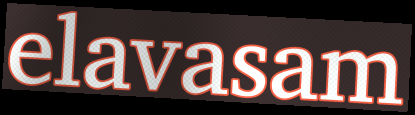
elavasam